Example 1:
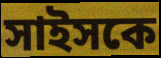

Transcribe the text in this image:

সাইসকে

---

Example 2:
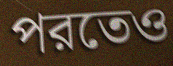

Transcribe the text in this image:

পরতেও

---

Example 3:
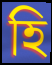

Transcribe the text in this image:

হি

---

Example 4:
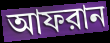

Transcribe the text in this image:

আফরান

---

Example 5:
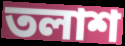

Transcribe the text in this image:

তলাশ